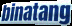
binatang